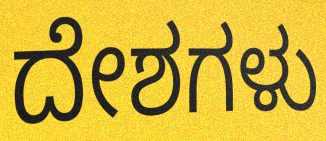
ದೇಶಗಳು